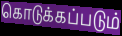
கொடுக்கப்படும்